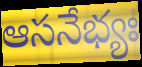
ఆసనేభ్యః